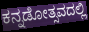
ಕನ್ನಡೋತ್ಸವದಲ್ಲಿ